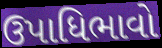
ઉપાધિભાવો